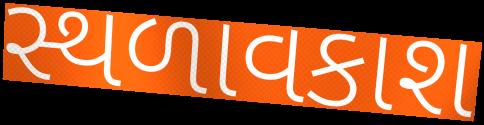
સ્થળાવકાશ